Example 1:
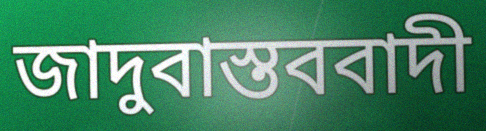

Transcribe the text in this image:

জাদুবাস্তববাদী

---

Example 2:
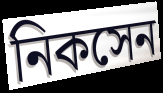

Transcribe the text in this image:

নিকসেন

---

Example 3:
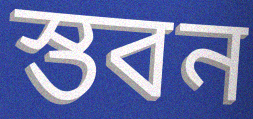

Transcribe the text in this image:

স্তবন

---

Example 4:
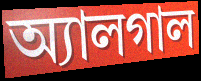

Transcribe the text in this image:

অ্যালগাল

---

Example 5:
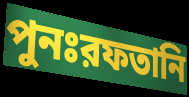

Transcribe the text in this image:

পুনঃরফতানি